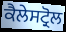
ਕੈਲੇਸਟ੍ਰੋਲ